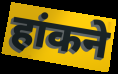
हांकने